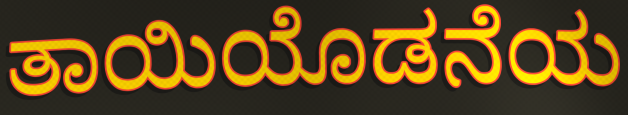
ತಾಯಿಯೊಡನೆಯ